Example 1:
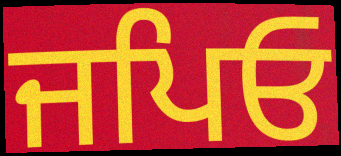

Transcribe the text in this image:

ਜਪਿਓ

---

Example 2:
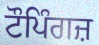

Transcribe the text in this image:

ਟੌਪਿੰਗਜ਼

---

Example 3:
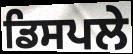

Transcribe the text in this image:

ਡਿਸਪਲੇ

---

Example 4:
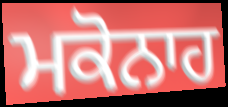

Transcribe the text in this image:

ਮਕੋਨਾਹ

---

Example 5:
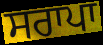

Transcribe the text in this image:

ਸਰਾਪਾ